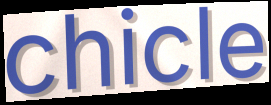
chicle